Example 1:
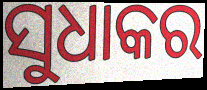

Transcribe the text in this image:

ସୁଧାକର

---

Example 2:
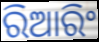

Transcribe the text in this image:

ରିଆରିଂ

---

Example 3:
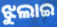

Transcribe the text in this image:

ଝୁଲାଇ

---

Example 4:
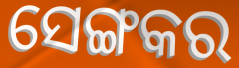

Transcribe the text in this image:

ସେଙ୍ଗକର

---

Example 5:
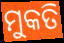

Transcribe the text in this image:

ମୁକତି